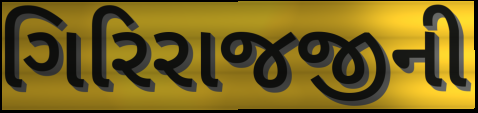
ગિરિરાજજીની